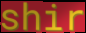
shir